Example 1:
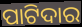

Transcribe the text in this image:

ପାଟିଦାର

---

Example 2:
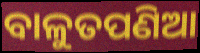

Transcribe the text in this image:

ବାଳୁତପଣିଆ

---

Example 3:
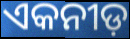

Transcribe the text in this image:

ଏକନୀଡ଼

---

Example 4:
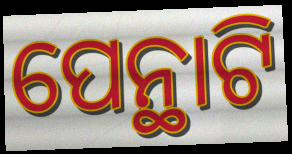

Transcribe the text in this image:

ପେନ୍ଥାଟି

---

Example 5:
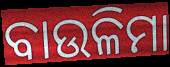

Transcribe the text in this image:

ବାଉଳିମା